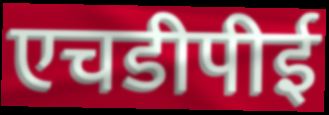
एचडीपीई